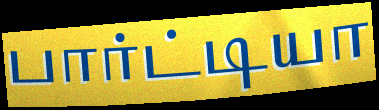
பார்ட்டியா